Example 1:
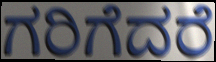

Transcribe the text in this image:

ಗರಿಗೆದರೆ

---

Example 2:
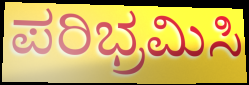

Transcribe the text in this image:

ಪರಿಭ್ರಮಿಸಿ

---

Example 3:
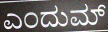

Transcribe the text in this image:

ಎಂದುಮ್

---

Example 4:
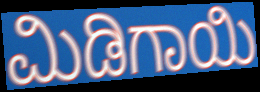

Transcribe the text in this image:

ಮಿಡಿಗಾಯಿ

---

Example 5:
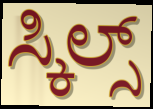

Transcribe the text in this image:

ಸ್ಕಿಲ್ಸ್